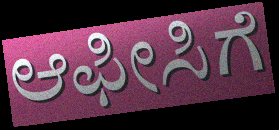
ಆಫೀಸಿಗೆ